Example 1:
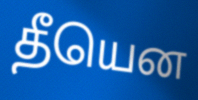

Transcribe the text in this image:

தீயென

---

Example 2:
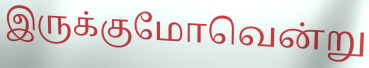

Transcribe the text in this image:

இருக்குமோவென்று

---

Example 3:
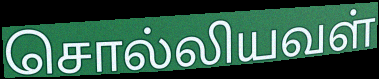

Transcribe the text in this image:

சொல்லியவள்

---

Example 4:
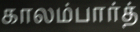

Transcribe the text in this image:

காலம்பார்த்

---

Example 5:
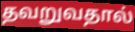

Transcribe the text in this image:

தவறுவதால்